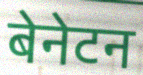
बेनेटन